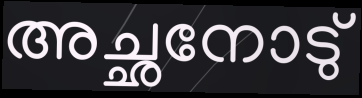
അച്ഛനോടു്